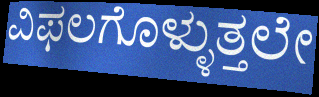
ವಿಫಲಗೊಳ್ಳುತ್ತಲೇ